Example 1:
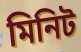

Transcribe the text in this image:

মিনিট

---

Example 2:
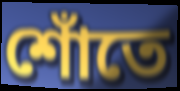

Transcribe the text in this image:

শোঁতে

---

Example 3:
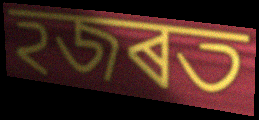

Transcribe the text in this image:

হজৰত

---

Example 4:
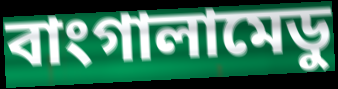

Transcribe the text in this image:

বাংগালামেডু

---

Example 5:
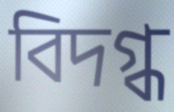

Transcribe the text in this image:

বিদগ্ধ